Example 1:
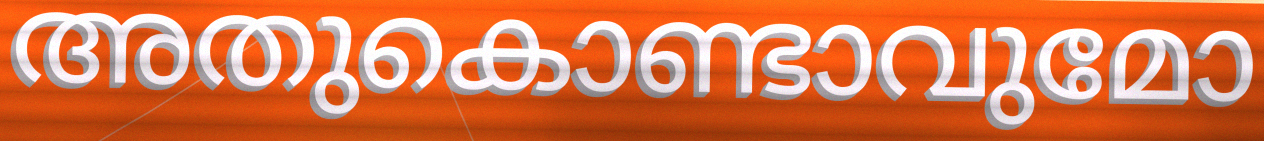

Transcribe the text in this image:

അതുകൊണ്ടാവുമോ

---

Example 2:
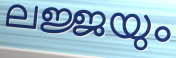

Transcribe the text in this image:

ലജ്ജയും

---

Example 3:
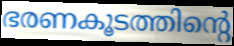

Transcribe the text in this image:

ഭരണകൂടത്തിന്റെ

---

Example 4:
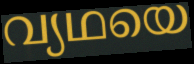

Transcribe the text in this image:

വ്യഥയെ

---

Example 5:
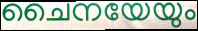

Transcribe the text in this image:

ചൈനയേയും